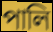
পালি